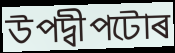
উপদ্বীপটোৰ